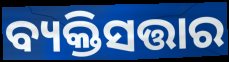
ବ୍ୟକ୍ତିସତ୍ତାର